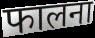
फालना